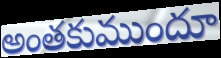
అంతకుముందూ